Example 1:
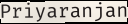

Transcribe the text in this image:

Priyaranjan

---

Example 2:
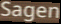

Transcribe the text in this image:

Sagen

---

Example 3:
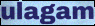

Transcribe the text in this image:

ulagam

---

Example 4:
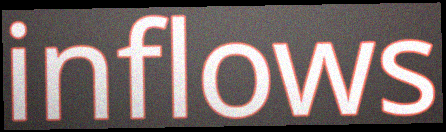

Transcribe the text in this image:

inflows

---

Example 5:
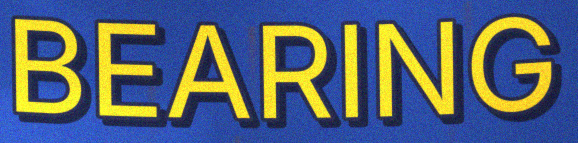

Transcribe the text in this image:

BEARING